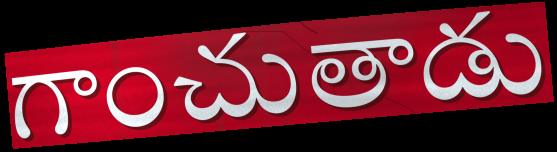
గాంచుతాడు